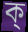
ক্